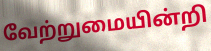
வேற்றுமையின்றி